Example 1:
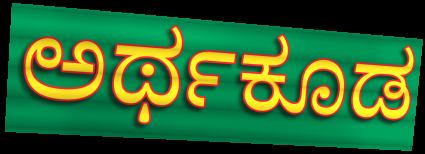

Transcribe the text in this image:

ಅರ್ಥಕೂಡ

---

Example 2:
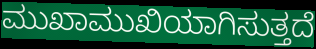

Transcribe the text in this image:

ಮುಖಾಮುಖಿಯಾಗಿಸುತ್ತದೆ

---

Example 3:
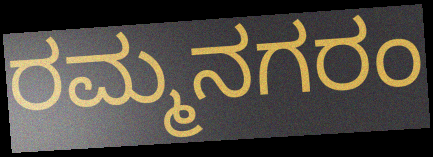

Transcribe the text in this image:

ರಮ್ಮನಗರಂ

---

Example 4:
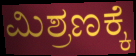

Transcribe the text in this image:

ಮಿಶ್ರಣಕ್ಕೆ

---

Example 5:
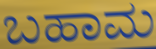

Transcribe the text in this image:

ಬಹಾಮ